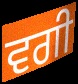
ਵਗੀ